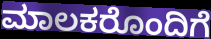
ಮಾಲಕರೊಂದಿಗೆ